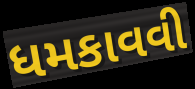
ધમકાવવી